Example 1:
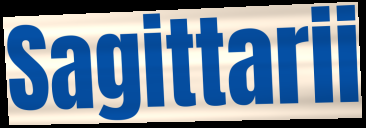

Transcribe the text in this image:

Sagittarii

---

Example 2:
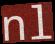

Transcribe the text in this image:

nl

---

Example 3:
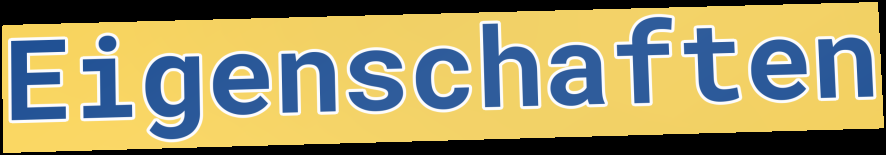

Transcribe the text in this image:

Eigenschaften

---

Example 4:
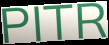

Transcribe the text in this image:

PITR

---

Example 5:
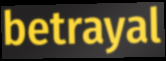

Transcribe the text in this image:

betrayal